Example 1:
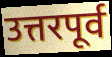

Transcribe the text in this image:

उत्तरपूर्व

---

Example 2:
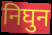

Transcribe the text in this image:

निघुन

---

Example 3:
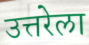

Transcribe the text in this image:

उत्तरेला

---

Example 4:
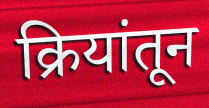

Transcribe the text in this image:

क्रियांतून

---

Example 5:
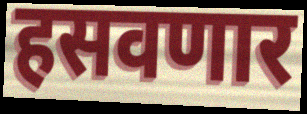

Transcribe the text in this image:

हसवणार